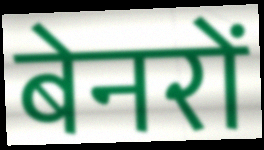
बेनरों